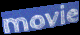
movie